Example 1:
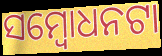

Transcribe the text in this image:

ସମ୍ବୋଧନଟା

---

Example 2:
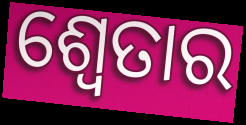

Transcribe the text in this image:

ଶ୍ୱେତାର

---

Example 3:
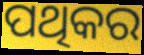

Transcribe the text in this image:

ପଥିକର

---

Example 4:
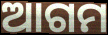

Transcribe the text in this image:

ଆଗମ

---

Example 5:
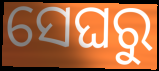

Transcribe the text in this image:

ସେଘରୁ